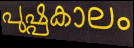
പുഷ്പകാലം